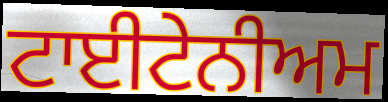
ਟਾਈਟੇਨੀਅਮ